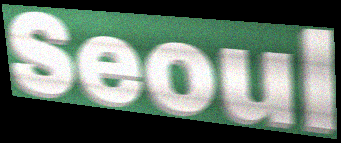
Seoul